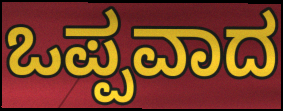
ಒಪ್ಪವಾದ